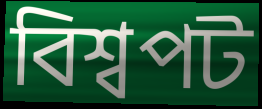
বিশ্বপট